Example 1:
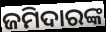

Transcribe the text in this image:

ଜମିଦାରଙ୍କ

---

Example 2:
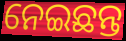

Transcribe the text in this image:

ନେଇଛନ୍ତ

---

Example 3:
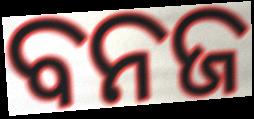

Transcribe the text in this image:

ବନଜ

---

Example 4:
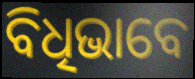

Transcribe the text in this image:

ବିଧିଭାବେ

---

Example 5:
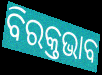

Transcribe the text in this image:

ବିରକ୍ତଭାବ